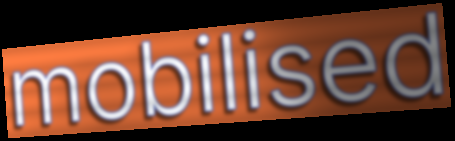
mobilised